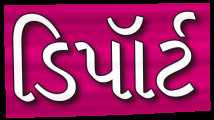
ડિપૉર્ટ